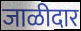
जाळीदार